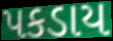
પકડાય